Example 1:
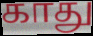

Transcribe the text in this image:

காது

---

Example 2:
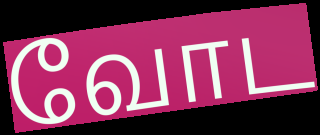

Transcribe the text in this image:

வோட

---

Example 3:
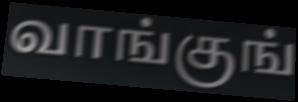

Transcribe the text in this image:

வாங்குங்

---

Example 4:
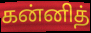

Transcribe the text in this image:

கன்னித்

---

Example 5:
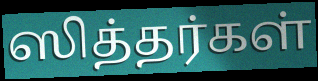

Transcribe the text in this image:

ஸித்தர்கள்